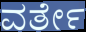
ವರ್ತೇ